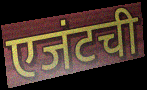
एजंटची